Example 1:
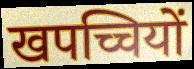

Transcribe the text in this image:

खपच्चियों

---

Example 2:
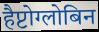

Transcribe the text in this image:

हैप्टोग्लोबिन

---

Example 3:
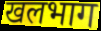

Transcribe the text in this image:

खलभाग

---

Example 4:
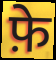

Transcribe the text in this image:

फ़े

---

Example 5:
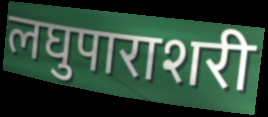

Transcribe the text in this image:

लघुपाराशरी